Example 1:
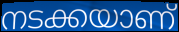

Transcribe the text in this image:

നടക്കയാണ്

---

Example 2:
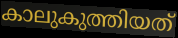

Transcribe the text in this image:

കാലുകുത്തിയത്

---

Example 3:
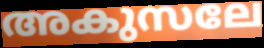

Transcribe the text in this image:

അകുസലേ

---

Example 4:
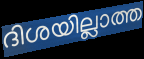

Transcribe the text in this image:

ദിശയില്ലാത്ത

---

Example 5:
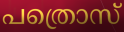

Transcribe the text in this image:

പത്രൊസ്